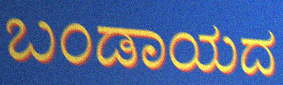
ಬಂಡಾಯದ